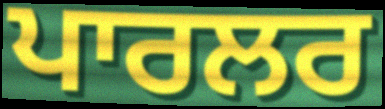
ਪਾਰਲਰ